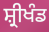
ਸ਼੍ਰੀਖੰਡ